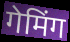
गेमिंग